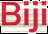
Biji